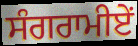
ਸੰਗਰਾਮੀਏਂ